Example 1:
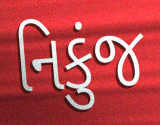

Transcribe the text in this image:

નિકુંજ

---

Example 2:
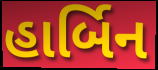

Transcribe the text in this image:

હાર્બિન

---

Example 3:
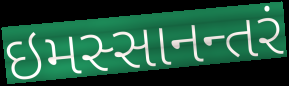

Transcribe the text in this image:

ઇમસ્સાનન્તરં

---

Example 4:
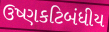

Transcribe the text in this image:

ઉષ્ણકટિબંધીય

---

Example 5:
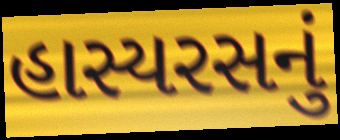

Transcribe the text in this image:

હાસ્યરસનું